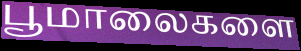
பூமாலைகளை